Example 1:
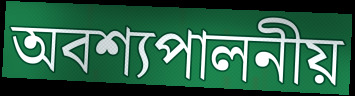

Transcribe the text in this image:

অবশ্যপালনীয়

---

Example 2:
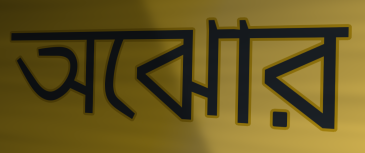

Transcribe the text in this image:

অঝোর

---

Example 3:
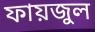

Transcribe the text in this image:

ফায়জুল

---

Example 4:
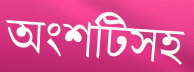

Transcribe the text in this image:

অংশটিসহ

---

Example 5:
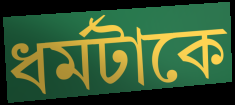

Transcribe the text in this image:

ধর্মটাকে